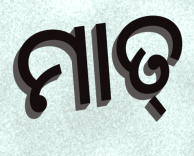
ମାତ୍